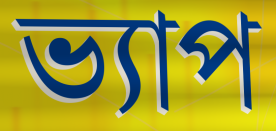
ভ্যাপ